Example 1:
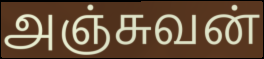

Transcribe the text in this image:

அஞ்சுவன்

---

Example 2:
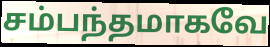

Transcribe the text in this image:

சம்பந்தமாகவே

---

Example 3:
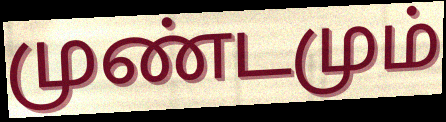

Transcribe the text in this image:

முண்டமும்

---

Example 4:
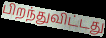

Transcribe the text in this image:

பிறந்துவிட்டது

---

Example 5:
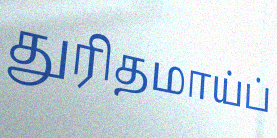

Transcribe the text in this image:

துரிதமாய்ப்